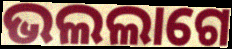
ଭଲଲାଗେ